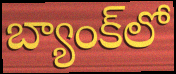
బ్యాంక్‌లో